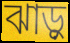
ঝাড়ু